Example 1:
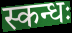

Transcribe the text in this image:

स्कन्धः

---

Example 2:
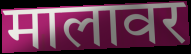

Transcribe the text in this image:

मालावर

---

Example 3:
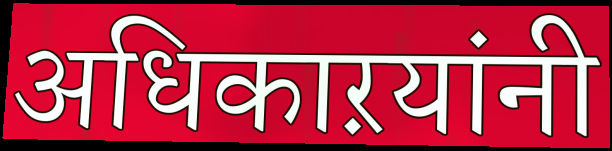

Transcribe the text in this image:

अधिकाऱयांनी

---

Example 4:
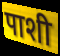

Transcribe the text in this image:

पाशी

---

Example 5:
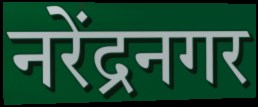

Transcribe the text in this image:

नरेंद्रनगर